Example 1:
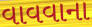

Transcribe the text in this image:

વાવવાના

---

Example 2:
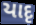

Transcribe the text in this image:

યાદૃ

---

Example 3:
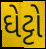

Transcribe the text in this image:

ઘેટ્ટો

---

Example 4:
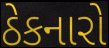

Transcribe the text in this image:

ઠેકનારો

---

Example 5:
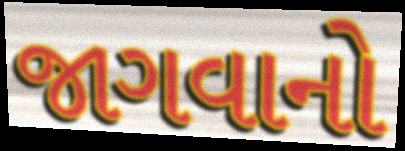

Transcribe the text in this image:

જાગવાનો